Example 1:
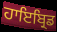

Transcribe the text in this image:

ਹਾਇਬ੍ਰਿਡ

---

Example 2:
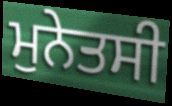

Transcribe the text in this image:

ਮੁਨੇਤਸੀ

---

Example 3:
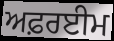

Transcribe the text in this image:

ਅਫ਼ਰਈਮ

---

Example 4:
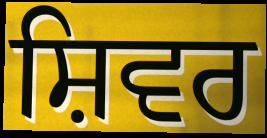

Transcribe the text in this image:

ਸ਼ਿਵਰ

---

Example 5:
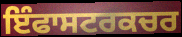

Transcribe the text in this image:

ਇੰਫਾਸਟਰਕਚਰ